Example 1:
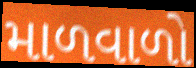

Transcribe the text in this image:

માળવાળો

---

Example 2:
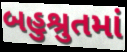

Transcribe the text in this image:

બહુશ્રુતમાં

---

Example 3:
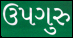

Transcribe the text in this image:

ઉપગુરુ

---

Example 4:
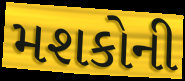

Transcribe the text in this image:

મશકોની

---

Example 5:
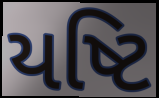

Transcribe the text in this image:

યષ્ટિ